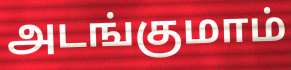
அடங்குமாம்